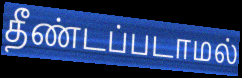
தீண்டப்படாமல்